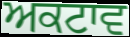
ਅਕਟਾਵ